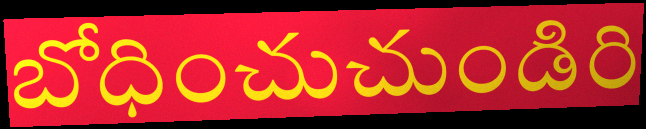
బోధించుచుండిరి